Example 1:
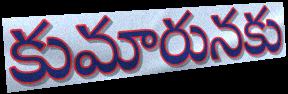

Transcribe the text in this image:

కుమారునకు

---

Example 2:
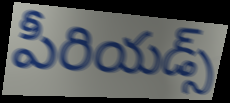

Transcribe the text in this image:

పీరియడ్స్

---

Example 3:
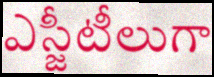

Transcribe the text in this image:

ఎస్జీటీలుగా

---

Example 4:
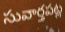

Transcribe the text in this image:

సువార్తపట్ల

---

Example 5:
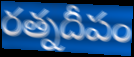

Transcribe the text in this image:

రత్నదీపం